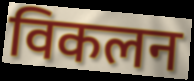
विकलन